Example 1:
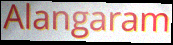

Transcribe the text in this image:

Alangaram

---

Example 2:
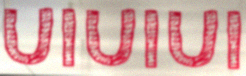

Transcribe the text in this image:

UIUIUI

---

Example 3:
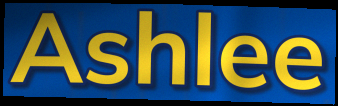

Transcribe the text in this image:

Ashlee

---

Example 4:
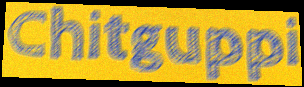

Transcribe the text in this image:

Chitguppi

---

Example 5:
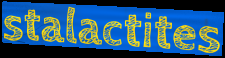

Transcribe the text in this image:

stalactites